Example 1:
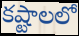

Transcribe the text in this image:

కష్టాలలో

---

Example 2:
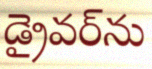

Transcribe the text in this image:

డ్రైవర్‌ను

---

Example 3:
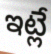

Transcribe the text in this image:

ఇట్లే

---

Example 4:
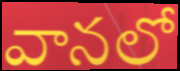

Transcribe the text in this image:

వానలో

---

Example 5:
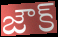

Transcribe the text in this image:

జౌక్